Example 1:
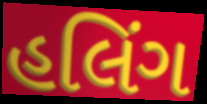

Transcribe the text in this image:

હલિંગ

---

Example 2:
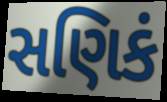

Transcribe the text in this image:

સણિકં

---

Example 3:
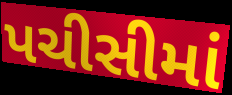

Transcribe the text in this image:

પચીસીમાં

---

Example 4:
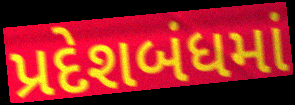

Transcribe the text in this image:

પ્રદેશબંધમાં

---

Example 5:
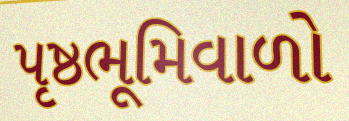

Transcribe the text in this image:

પૃષ્ઠભૂમિવાળો